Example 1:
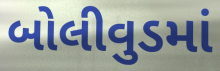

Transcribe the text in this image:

બોલીવુડમાં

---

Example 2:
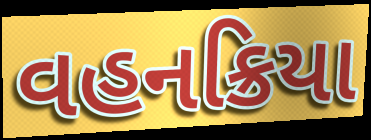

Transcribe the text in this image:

વહનક્રિયા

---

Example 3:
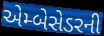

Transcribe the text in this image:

એમ્બેસેડરની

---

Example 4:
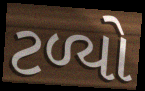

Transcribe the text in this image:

ટળ્યો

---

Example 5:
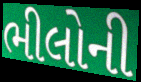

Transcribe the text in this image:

ભીલોની